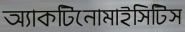
অ্যাকটিনোমাইসিটিস